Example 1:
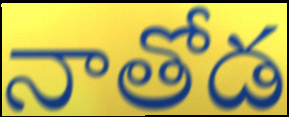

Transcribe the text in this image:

నాతోడ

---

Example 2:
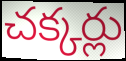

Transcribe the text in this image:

చక్కర్లు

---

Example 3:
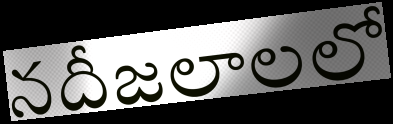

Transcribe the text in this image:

నదీజలాలలో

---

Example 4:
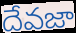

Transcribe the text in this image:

దేవజా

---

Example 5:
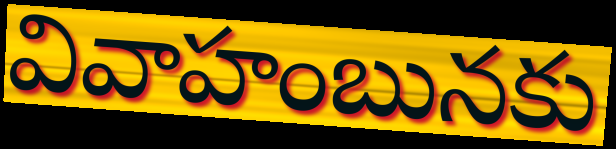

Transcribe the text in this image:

వివాహంబునకు